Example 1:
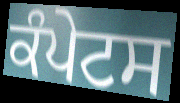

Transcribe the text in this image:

ਕੰਪੇਟਸ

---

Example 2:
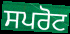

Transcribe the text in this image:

ਸਪਰੋਟ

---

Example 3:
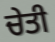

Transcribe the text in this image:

ਚੇਤੀ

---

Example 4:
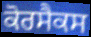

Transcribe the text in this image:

ਕੋਰਸੈਕਸ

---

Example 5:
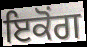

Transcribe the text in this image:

ਇਕੋਂਗ